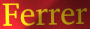
Ferrer